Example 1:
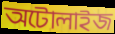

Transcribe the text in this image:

অটোলাইজ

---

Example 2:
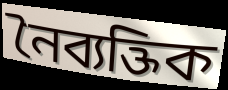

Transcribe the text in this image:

নৈব্যক্তিক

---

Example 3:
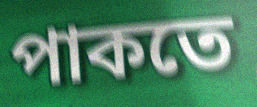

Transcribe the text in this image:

পাকতে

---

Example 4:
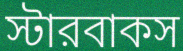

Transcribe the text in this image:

স্টারবাকস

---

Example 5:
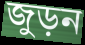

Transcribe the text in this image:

জুড়ন